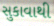
સુકાવાથી